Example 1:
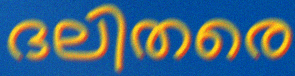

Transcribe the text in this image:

ദലിതരെ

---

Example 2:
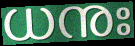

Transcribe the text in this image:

ധനുഃ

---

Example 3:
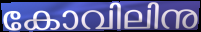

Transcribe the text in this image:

കോവിലിനു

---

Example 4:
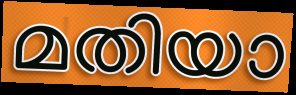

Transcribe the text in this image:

മതിയാ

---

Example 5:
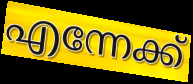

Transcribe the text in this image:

എന്നേക്ക്